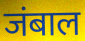
जंबाल